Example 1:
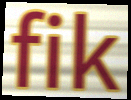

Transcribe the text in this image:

fik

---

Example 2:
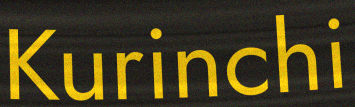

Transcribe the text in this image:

Kurinchi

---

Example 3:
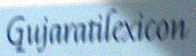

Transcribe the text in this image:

Gujaratilexicon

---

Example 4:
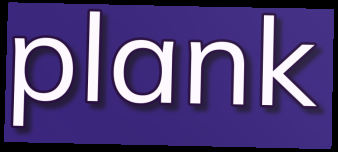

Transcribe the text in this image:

plank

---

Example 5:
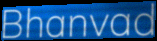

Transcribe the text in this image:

Bhanvad